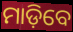
ମାଡ଼ିବେ